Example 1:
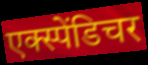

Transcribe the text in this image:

एक्स्पेंडिचर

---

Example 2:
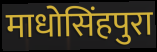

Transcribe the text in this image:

माधोसिंहपुरा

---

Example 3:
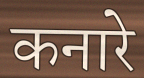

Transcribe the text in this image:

कनारे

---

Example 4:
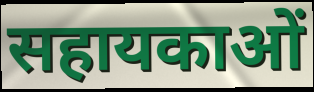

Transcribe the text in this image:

सहायकाओं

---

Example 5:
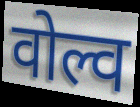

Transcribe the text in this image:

वोल्व